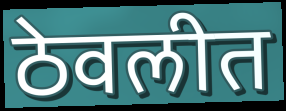
ठेवलीत